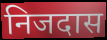
निजदास